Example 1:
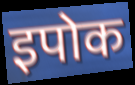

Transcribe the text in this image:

इपोक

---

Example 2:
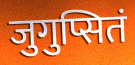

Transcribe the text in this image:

जुगुप्सितं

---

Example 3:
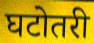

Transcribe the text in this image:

घटोतरी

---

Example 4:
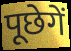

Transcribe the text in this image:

पूछेगें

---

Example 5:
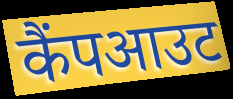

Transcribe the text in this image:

कैंपआउट